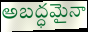
అబద్ధమైనా